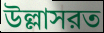
উল্লাসরত